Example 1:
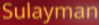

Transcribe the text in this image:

Sulayman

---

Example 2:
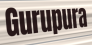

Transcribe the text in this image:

Gurupura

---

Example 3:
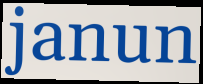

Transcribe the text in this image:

janun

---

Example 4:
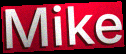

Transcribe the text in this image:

Mike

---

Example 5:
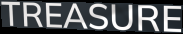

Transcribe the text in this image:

TREASURE